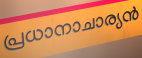
പ്രധാനാചാര്യൻ